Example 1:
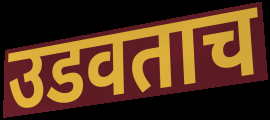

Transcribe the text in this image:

उडवताच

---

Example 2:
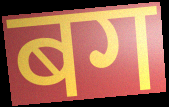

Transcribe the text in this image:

बग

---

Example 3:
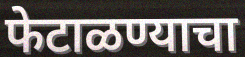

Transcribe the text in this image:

फेटाळण्याचा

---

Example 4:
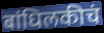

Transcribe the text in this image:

बांधिलकीचं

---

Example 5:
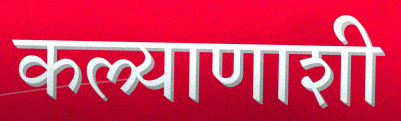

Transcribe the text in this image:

कल्याणाशी